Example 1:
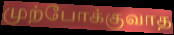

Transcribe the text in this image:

முற்போக்குவாத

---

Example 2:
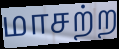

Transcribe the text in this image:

மாசற்ற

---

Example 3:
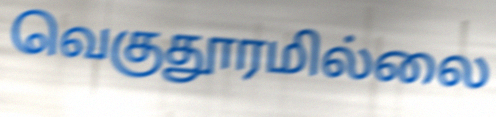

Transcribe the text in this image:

வெகுதூரமில்லை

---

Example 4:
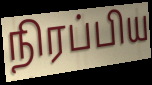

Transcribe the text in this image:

நிரப்பிய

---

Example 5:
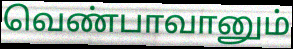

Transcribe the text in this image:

வெண்பாவானும்